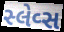
સ્લેવ્સ